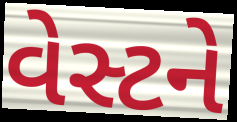
વેસ્ટને